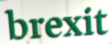
brexit